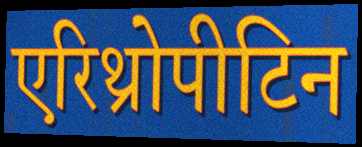
एरिथ्रोपीटिन